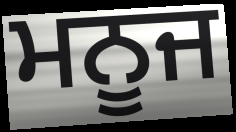
ਮਨੂਜ